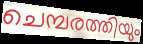
ചെമ്പരത്തിയും